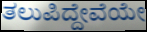
ತಲುಪಿದ್ದೇವೆಯೇ